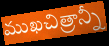
ముఖచిత్రాన్నీ